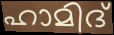
ഹാമിദ്